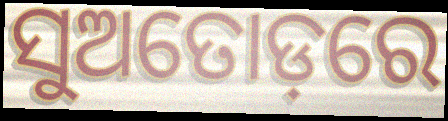
ସୁଅତୋଡ଼ରେ